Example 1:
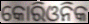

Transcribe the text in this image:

କୋରିଓନିକ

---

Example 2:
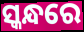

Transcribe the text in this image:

ସ୍କନ୍ଧରେ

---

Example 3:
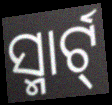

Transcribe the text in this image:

ସ୍ମାର୍ଟ୍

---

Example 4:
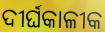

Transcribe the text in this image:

ଦୀର୍ଘକାଳୀକ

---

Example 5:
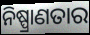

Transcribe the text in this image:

ନିଷ୍ପ୍ରାଣତାର